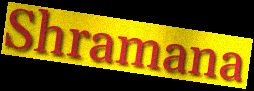
Shramana